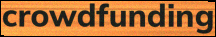
crowdfunding